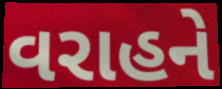
વરાહને